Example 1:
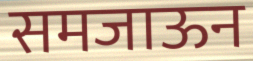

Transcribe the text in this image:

समजाऊन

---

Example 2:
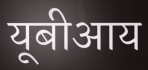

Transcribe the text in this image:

यूबीआय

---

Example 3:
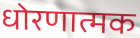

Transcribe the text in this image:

धोरणात्मक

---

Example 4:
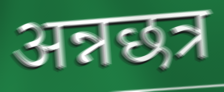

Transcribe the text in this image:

अन्नछत्र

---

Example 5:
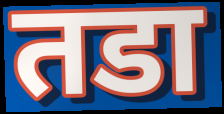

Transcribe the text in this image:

तडा